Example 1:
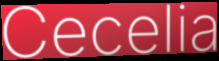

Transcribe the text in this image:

Cecelia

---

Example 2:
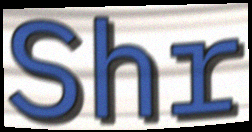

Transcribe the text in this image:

Shr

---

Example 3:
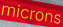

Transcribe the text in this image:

microns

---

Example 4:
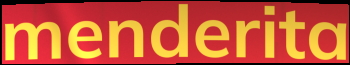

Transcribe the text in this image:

menderita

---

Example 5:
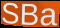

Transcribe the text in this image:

SBa